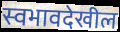
स्वभावदेखील